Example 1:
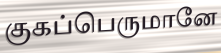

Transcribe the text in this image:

குகப்பெருமானே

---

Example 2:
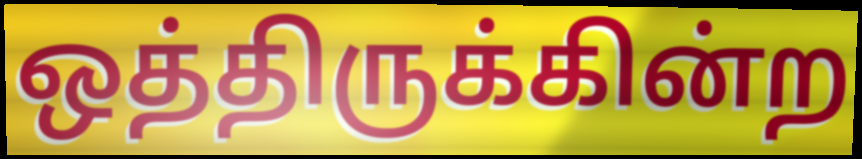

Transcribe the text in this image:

ஒத்திருக்கின்ற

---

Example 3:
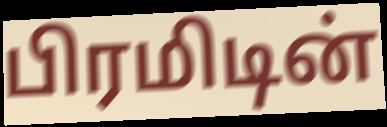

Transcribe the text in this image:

பிரமிடின்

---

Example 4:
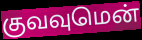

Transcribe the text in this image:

குவவுமென்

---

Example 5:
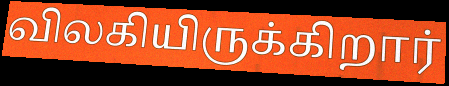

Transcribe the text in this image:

விலகியிருக்கிறார்